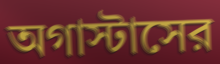
অগাস্টাসের